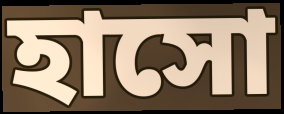
হাসো